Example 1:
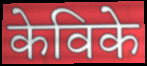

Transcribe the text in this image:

केविके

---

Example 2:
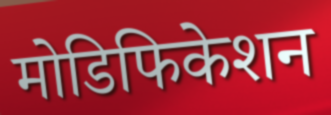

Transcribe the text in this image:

मोडिफिकेशन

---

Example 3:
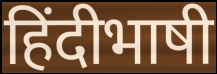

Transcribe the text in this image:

हिंदीभाषी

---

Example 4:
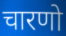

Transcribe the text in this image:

चारणो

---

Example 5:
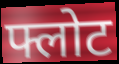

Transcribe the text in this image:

फ्लोट